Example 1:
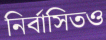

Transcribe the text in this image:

নির্বাসিতও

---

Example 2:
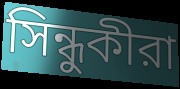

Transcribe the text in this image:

সিন্ধুকীরা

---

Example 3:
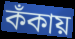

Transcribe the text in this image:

কঁকায়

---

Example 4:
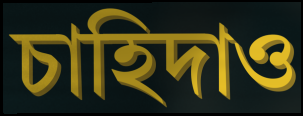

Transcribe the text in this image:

চাহিদাও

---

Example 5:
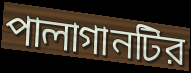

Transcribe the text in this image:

পালাগানটির